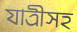
যাত্রীসহ